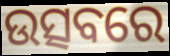
ଉତ୍ସବରେ